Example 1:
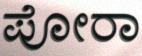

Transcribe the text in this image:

ಪೋರಾ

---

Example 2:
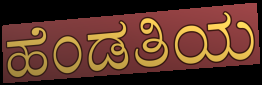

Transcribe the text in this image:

ಹೆಂಡತಿಯ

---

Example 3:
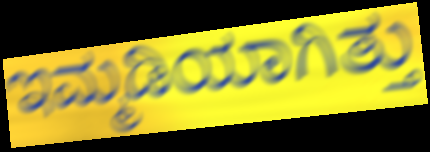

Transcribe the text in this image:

ಇಮ್ಮಡಿಯಾಗಿತ್ತು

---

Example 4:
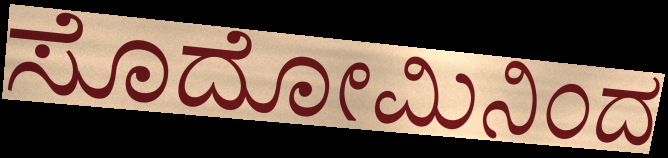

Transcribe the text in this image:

ಸೊದೋಮಿನಿಂದ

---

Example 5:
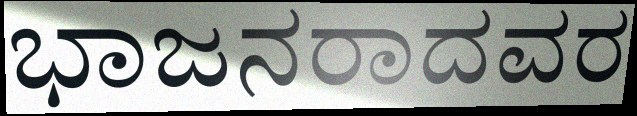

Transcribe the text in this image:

ಭಾಜನರಾದವರ